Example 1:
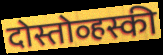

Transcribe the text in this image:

दोस्तोव्हस्की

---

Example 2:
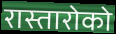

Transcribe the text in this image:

रास्तारोको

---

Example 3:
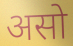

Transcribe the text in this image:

असो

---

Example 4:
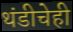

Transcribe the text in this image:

थंडीचेही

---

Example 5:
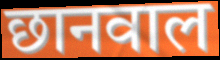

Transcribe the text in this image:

छानवाल